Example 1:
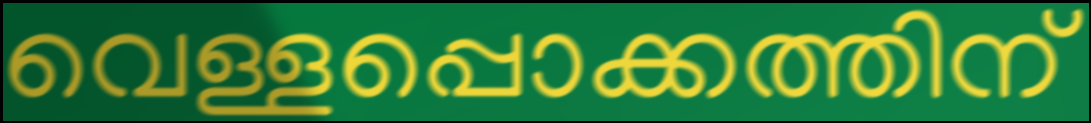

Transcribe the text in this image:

വെള്ളപ്പൊക്കത്തിന്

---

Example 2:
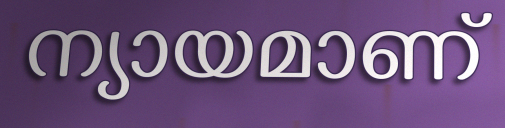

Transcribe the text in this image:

ന്യായമാണ്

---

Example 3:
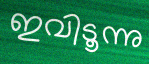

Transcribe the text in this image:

ഇവിടൂന്നു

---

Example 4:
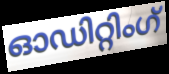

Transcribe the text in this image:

ഓഡിറ്റിംഗ്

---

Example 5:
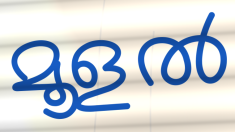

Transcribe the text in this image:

മൂളൽ